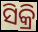
ସିକ୍ରି